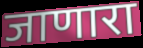
जाणारा